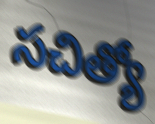
సచిత్యో